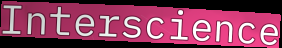
Interscience